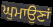
ਘੁਮਾਉਣਾਂ